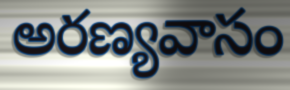
అరణ్యవాసం